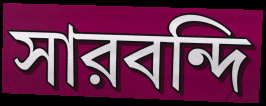
সারবন্দি